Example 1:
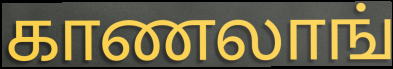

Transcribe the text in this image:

காணலாங்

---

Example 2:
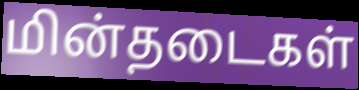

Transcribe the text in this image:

மின்தடைகள்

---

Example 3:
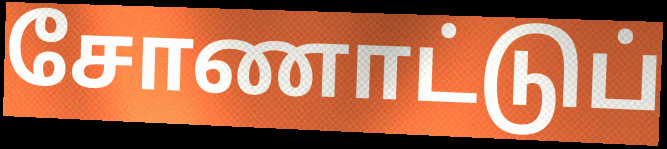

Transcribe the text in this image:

சோணாட்டுப்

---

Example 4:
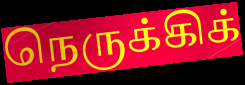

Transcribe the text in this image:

நெருக்கிக்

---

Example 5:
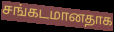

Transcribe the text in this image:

சங்கடமானதாக